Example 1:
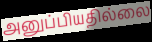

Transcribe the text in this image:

அனுப்பியதில்லை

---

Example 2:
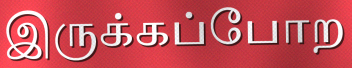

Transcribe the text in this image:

இருக்கப்போற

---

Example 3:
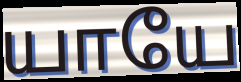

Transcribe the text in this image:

யாயே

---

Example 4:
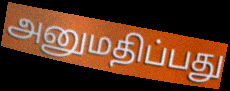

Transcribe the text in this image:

அனுமதிப்பது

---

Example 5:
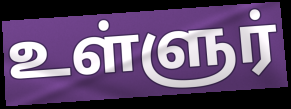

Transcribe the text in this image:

உள்ளுர்